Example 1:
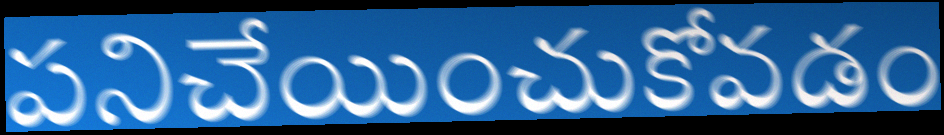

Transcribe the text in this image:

పనిచేయించుకోవడం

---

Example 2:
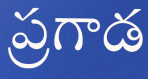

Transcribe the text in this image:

ప్రగాడ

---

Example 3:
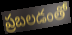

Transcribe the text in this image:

ప్రబలడంతో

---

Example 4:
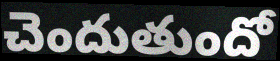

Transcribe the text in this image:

చెందుతుందో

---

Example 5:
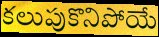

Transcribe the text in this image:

కలుపుకొనిపోయే